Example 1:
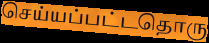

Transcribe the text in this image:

செய்யப்பட்டதொரு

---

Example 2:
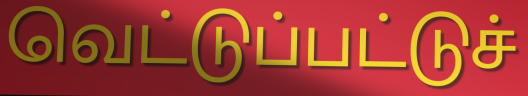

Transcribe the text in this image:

வெட்டுப்பட்டுச்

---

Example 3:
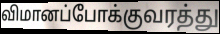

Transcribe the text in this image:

விமானப்போக்குவரத்து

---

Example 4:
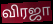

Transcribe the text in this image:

விரஜா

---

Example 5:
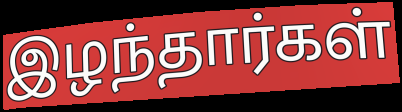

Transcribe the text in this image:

இழந்தார்கள்